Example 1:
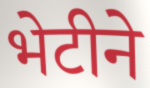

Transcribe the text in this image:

भेटीने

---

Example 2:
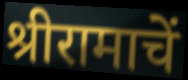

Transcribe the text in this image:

श्रीरामाचें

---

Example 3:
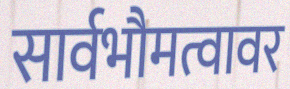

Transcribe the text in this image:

सार्वभौमत्वावर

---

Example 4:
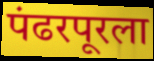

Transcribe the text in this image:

पंढरपूरला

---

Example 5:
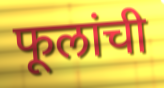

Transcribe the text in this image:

फूलांची